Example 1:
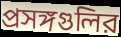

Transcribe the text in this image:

প্রসঙ্গগুলির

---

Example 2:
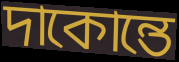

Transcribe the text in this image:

দাকোন্তে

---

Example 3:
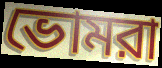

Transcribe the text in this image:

ভোমরা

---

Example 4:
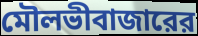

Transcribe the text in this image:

মৌলভীবাজারের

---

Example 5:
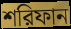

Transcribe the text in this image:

শরিফান